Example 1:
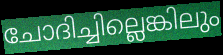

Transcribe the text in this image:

ചോദിച്ചില്ലെങ്കിലും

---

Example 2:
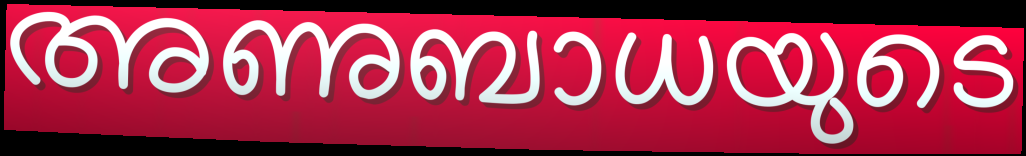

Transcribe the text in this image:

അണുബാധയുടെ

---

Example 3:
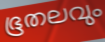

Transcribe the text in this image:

ഭൂതലവും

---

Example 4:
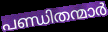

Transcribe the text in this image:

പണ്ഡിതന്മാർ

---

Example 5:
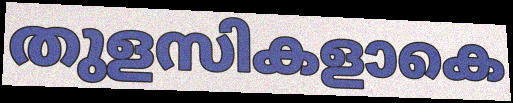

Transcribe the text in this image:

തുളസികളാകെ